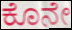
ಕೊನೇ